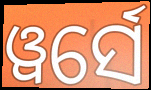
ୱର୍ସେ